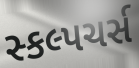
સ્કલ્પચર્સ